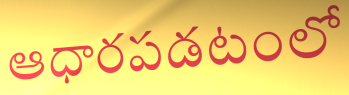
ఆధారపడటంలో